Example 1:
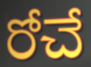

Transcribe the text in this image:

రోచే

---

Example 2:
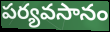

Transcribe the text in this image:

పర్యవసానం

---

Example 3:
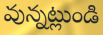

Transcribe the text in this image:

వున్నట్లుండి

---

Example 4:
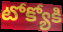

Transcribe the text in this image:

టోక్యోకి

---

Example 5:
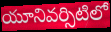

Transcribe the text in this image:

యూనివర్సిటిలో